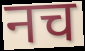
नच